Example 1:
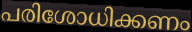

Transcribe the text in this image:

പരിശോധിക്കണം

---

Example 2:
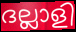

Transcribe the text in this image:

ദല്ലാളി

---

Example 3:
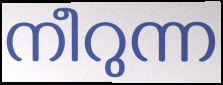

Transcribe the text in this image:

നീറുന്ന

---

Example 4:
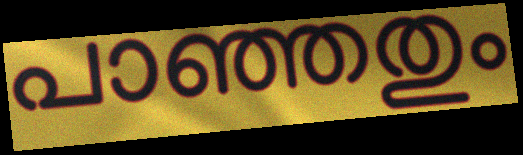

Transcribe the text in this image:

പാഞ്ഞതും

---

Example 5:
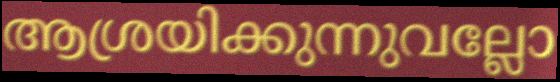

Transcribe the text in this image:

ആശ്രയിക്കുന്നുവല്ലോ